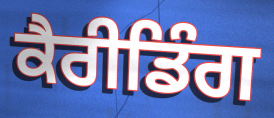
ਕੈਰੀਡਿੰਗ